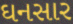
ઘનસાર